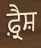
ਫ਼੍ਰੈਸ਼